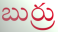
బుర్రు